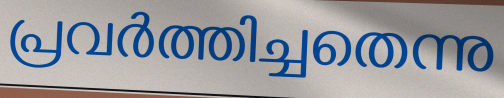
പ്രവർത്തിച്ചതെന്നു